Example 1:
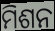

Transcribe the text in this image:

ମିଶନ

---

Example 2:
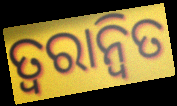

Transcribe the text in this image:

ତ୍ୱରାନ୍ୱିତ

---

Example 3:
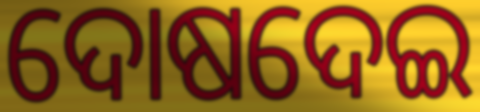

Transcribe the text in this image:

ଦୋଷଦେଇ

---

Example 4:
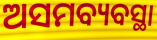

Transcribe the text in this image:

ଅସମବ୍ୟବସ୍ଥା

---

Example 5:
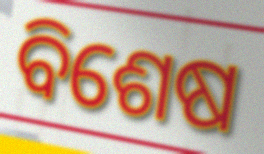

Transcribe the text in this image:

ବିଶେଷ